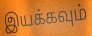
இயக்கவும்